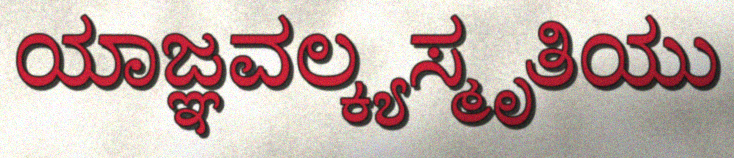
ಯಾಜ್ಞವಲ್ಕ್ಯಸ್ಮೃತಿಯು